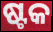
ଷ୍ଟକ